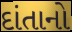
દાંતાનો